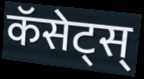
कॅसेट्स्